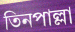
তিনপাল্লা